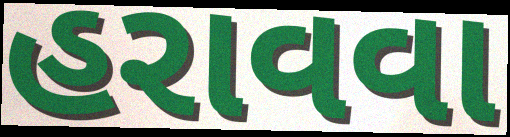
હરાવવા